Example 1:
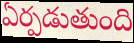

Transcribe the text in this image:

ఏర్పడుతుంది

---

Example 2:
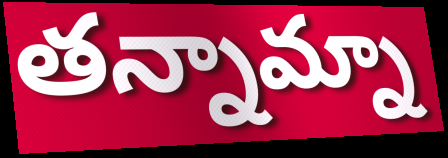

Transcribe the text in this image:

తన్నామ్నా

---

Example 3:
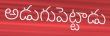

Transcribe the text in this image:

అడుగుపెట్టాడు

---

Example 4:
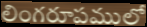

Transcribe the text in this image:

లింగరూపములో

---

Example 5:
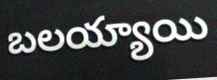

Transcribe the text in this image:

బలయ్యాయి